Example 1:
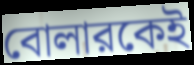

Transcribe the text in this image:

বোলারকেই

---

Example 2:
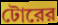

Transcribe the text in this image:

টোরের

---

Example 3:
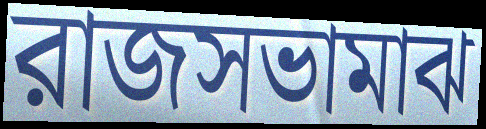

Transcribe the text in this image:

রাজসভামাঝ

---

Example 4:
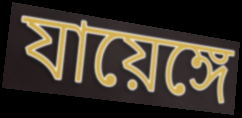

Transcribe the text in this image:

যায়েঙ্গে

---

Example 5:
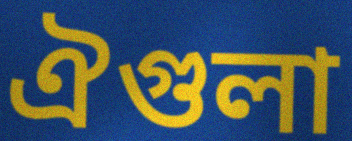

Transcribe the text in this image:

ঐগুলা